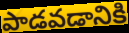
పాడవడానికి